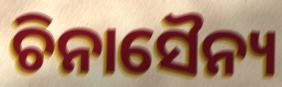
ଚିନାସୈନ୍ୟ